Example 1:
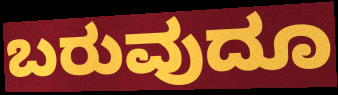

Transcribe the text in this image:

ಬರುವುದೂ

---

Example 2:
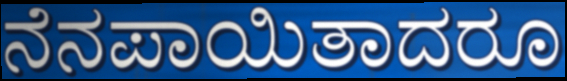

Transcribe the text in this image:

ನೆನಪಾಯಿತಾದರೂ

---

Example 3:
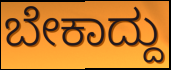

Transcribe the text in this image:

ಬೇಕಾದ್ದು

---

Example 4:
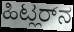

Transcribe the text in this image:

ಹಿಟ್ಲರ್‌ನ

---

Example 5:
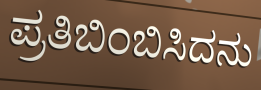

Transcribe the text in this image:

ಪ್ರತಿಬಿಂಬಿಸಿದನು